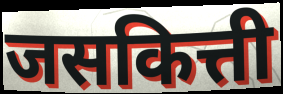
जसकित्ती